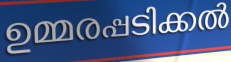
ഉമ്മരപ്പടിക്കൽ